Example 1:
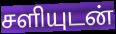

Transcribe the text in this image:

சளியுடன்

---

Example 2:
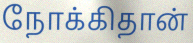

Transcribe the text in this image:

நோக்கிதான்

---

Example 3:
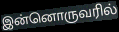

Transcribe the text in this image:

இன்னொருவரில்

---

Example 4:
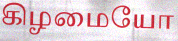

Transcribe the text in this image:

கிழமையோ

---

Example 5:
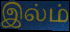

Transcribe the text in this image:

இல்ம்